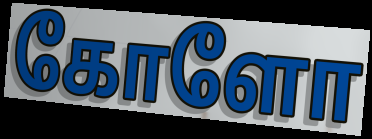
கோளோ